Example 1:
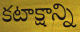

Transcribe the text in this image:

కటాక్షాన్ని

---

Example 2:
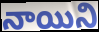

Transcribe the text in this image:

నాయిని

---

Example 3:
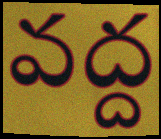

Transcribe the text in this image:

వద్ద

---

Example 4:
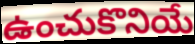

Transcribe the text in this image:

ఉంచుకొనియే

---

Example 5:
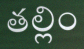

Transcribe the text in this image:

తల్లిం